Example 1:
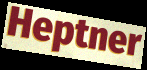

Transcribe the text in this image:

Heptner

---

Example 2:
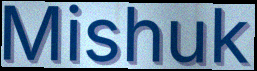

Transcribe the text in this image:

Mishuk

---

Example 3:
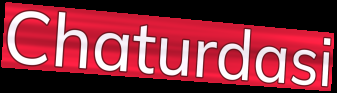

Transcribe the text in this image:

Chaturdasi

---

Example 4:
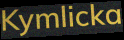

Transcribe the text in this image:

Kymlicka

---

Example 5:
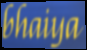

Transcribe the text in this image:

bhaiya